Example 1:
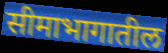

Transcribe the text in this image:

सीमाभागातील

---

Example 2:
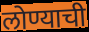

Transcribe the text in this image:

लोण्याची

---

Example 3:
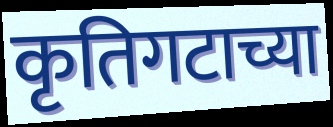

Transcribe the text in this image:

कृतिगटाच्या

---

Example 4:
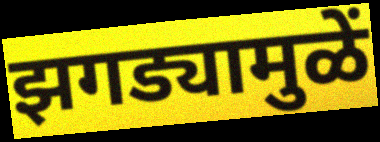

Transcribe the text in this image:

झगड्यामुळें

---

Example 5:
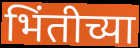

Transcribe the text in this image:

भिंतीच्या